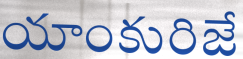
యాంకురిజే